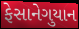
ફેસાનેગુયાન